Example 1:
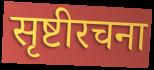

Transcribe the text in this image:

सृष्टीरचना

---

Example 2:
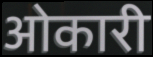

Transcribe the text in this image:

ओकारी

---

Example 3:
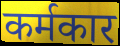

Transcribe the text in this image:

कर्मकार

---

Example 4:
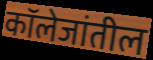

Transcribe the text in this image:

कॉलेजांतील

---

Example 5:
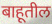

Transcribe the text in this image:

बाहूतील